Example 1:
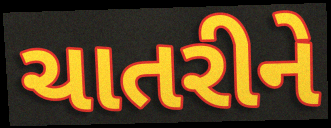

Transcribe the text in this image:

ચાતરીને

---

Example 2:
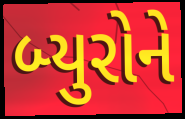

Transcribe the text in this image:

બ્યુરોને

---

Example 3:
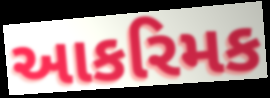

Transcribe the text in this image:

આકરિમક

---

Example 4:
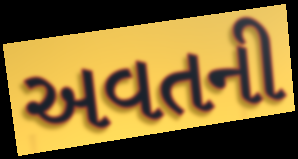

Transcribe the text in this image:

અવતની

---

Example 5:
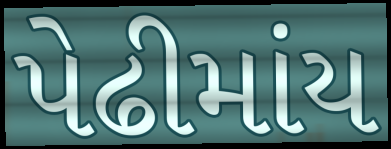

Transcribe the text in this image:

પેઢીમાંય